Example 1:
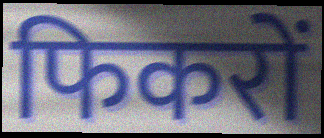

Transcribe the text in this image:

फिकरों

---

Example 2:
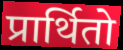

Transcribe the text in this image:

प्रार्थितो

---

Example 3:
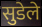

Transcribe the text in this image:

सुडेले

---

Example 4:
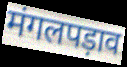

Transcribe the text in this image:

मंगलपड़ाव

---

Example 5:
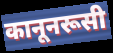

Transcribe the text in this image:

कानूनरूसी